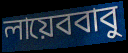
লায়েববাবু